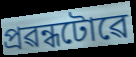
প্ৰৱন্ধটোৱে